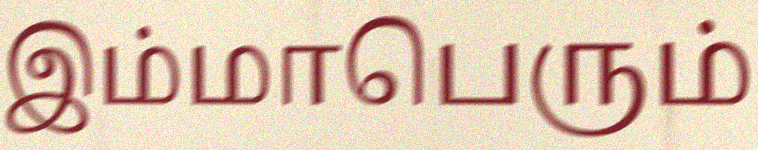
இம்மாபெரும்